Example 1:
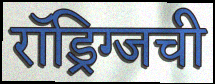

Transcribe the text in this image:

रॉड्रिग्जची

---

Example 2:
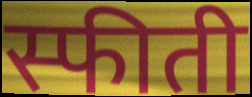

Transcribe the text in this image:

स्फीती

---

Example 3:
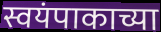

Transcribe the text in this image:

स्वयंपाकाच्या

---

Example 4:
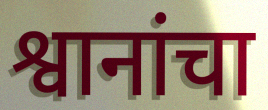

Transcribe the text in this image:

श्वानांचा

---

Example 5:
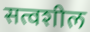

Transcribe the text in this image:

सत्वशील